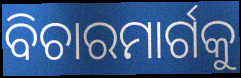
ବିଚାରମାର୍ଗକୁ